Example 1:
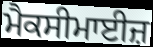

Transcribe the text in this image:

ਮੈਕਸੀਮਾਈਜ਼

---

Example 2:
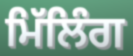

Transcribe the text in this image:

ਮਿੱਲਿੰਗ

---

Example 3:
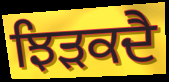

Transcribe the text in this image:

ਝਿੜਕਦੈ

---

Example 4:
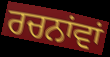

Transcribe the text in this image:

ਰਚਨਾਂਵਾਂ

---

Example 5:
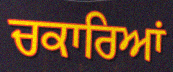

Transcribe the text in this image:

ਚਕਾਰਿਆਂ